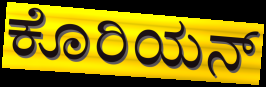
ಕೊರಿಯನ್